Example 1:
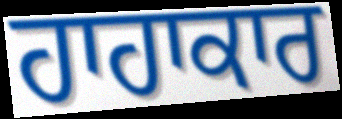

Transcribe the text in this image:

ਹਾਹਾਕਾਰ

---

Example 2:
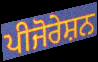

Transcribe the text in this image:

ਪੀਜੋਰੇਸ਼ਨ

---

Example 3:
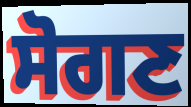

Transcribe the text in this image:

ਸੋਗਣ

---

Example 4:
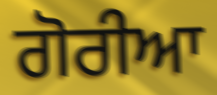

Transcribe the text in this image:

ਗੋਰੀਆ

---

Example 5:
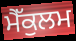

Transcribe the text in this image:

ਮੈੱਕੁਲਮ